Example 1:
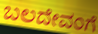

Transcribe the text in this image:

ಬಲದೇವಂಗೆ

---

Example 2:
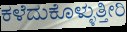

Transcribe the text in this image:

ಕಳೆದುಕೊಳ್ಳುತ್ತೀರಿ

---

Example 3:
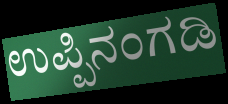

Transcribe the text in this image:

ಉಪ್ಪಿನಂಗಡಿ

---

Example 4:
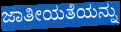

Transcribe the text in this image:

ಜಾತೀಯತೆಯನ್ನು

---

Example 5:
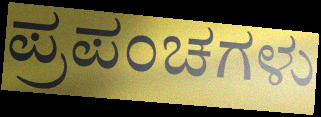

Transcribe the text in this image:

ಪ್ರಪಂಚಗಳು